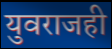
युवराजही